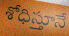
శోధిస్తూనే